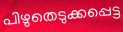
പിഴുതെടുക്കപ്പെട്ട